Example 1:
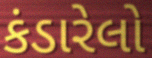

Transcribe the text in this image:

કંડારેલો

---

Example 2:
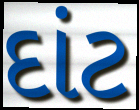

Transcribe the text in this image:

દાંટ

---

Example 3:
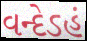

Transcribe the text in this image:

વન્દેઽહં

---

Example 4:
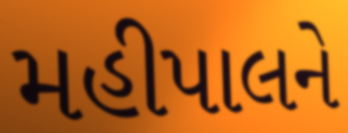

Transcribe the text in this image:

મહીપાલને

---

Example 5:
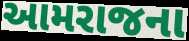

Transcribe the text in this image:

આમરાજના